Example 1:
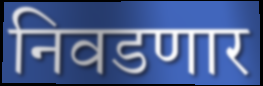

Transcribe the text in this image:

निवडणार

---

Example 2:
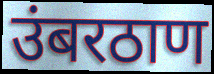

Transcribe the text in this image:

उंबरठाण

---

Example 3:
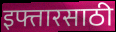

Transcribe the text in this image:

इफ्तारसाठी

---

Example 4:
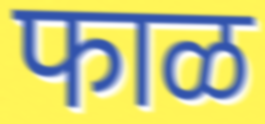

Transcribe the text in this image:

फाळ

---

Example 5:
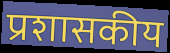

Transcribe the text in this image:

प्रशासकीय